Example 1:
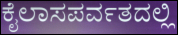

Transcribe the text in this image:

ಕೈಲಾಸಪರ್ವತದಲ್ಲಿ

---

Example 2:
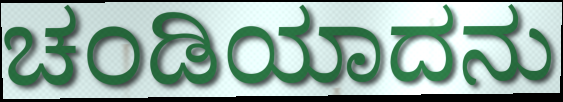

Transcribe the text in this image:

ಚಂಡಿಯಾದನು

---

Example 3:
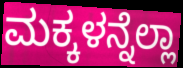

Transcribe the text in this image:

ಮಕ್ಕಳನ್ನೆಲ್ಲಾ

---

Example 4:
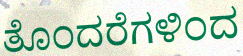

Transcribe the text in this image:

ತೊಂದರೆಗಳಿಂದ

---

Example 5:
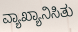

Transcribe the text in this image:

ವ್ಯಾಖ್ಯಾನಿಸಿತು